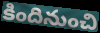
కిందినుంచి